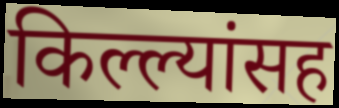
किल्ल्यांसह